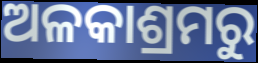
ଅଳକାଶ୍ରମରୁ